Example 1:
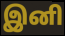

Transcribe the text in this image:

இனி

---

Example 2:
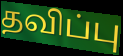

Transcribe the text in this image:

தவிப்பு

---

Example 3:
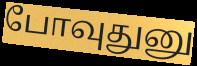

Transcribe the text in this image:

போவுதுனு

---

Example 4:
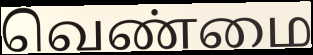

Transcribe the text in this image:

வெண்மை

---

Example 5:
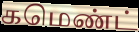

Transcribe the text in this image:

கமெண்ட்